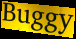
Buggy